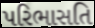
પરિભાસતિ